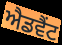
ਐਡਵੈਂਟ